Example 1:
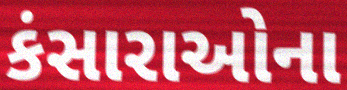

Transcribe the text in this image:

કંસારાઓના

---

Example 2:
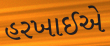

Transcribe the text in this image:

હરખાઈએ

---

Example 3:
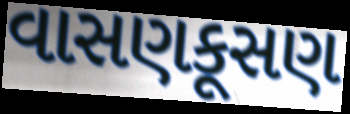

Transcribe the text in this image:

વાસણકૂસણ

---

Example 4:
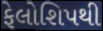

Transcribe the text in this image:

ફેલોશિપથી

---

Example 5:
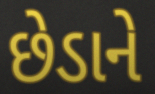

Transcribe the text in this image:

છેડાને